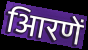
आिरणें